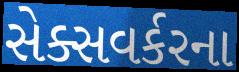
સેક્સવર્કરના